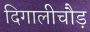
दिगालीचौड़